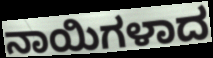
ನಾಯಿಗಳಾದ